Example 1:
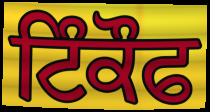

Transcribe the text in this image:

ਟਿੰਕੌਫ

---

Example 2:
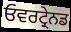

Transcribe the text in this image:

ਓਵਰਟ੍ਰੇਨਡ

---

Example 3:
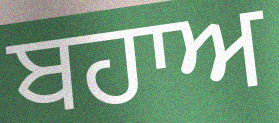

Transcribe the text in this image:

ਬਹਾਅ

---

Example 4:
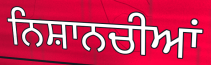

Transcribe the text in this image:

ਨਿਸ਼ਾਨਚੀਆਂ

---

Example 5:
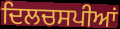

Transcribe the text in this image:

ਦਿਲਚਸਪੀਆਂ